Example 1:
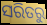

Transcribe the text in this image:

ସରିତରୁ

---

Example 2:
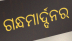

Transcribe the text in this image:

ଗନ୍ଧମାର୍ଦ୍ଦନର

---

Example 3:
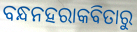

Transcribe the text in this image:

ବନ୍ଧନହରାକବିତାରୁ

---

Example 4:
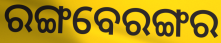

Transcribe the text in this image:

ରଙ୍ଗବେରଙ୍ଗର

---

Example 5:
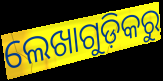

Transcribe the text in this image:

ଲେଖାଗୁଡ଼ିକରୁ